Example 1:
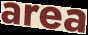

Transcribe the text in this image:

area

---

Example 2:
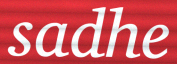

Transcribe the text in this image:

sadhe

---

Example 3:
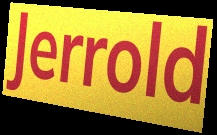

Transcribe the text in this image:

Jerrold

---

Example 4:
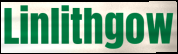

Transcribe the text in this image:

Linlithgow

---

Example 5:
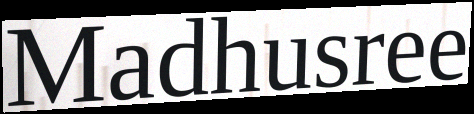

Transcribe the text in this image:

Madhusree